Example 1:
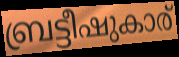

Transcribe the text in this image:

ബ്രട്ടീഷുകാര്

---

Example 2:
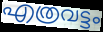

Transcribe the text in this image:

എത്രവട്ടം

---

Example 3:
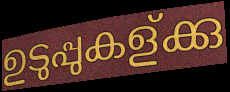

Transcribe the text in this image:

ഉടുപ്പുകള്ക്കു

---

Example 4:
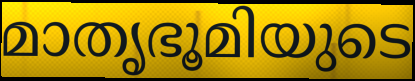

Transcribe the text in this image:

മാതൃഭൂമിയുടെ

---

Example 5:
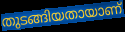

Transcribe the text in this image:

തുടങ്ങിയതായാണ്